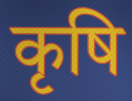
कृषि